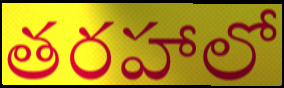
తరహాలో